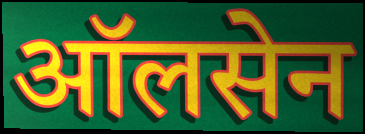
ऑलसेन